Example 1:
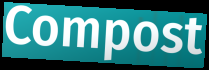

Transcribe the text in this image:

Compost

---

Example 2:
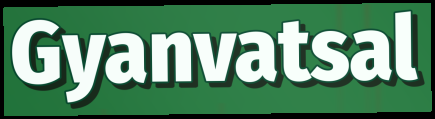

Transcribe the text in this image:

Gyanvatsal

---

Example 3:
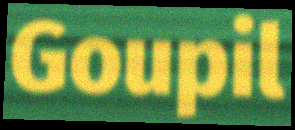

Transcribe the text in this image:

Goupil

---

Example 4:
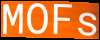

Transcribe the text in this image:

MOFs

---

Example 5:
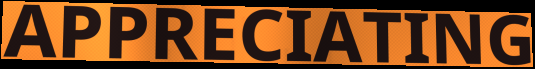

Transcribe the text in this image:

APPRECIATING